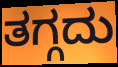
ತಗ್ಗದು